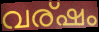
വര്ഷം